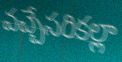
వచ్చేసరికల్లా